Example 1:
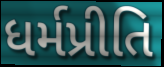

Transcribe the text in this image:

ધર્મપ્રીતિ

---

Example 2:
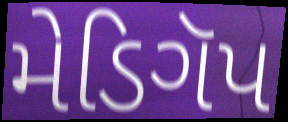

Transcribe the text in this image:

મેડિગૅપ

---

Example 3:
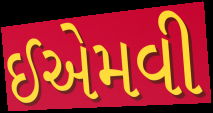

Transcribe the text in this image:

ઈએમવી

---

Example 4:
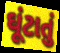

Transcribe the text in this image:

ઘૂંટાતું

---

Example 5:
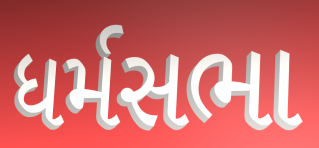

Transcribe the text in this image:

ધર્મસભા